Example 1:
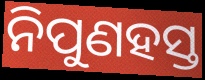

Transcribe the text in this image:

ନିପୁଣହସ୍ତ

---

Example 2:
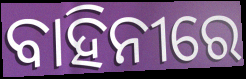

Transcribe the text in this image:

ବାହିନୀରେ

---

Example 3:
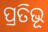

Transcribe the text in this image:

ପ୍ରତିଭୂ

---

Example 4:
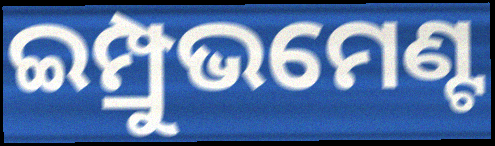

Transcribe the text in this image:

ଇମ୍ପ୍ରୁଭମେଣ୍ଟ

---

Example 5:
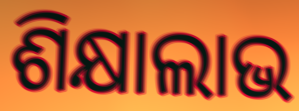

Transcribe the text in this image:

ଶିକ୍ଷାଲାଭ